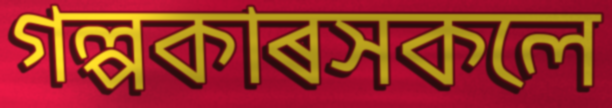
গল্পকাৰসকলে